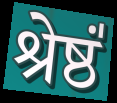
श्रेष्ठं॑